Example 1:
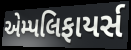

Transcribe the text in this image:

એમ્પલિફાયર્સ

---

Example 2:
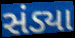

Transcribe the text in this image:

સંડ્યા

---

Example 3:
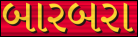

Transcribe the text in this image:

બારબરા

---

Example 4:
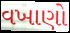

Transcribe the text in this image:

વખાણો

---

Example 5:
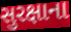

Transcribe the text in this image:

સુરક્ષાના